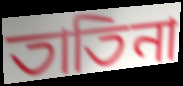
তাতিনা